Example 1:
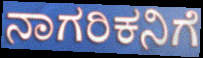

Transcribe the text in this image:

ನಾಗರಿಕನಿಗೆ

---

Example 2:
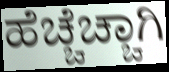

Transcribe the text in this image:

ಹೆಚ್ಚೆಚ್ಚಾಗಿ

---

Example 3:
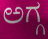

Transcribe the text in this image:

ಅಗ್ಗ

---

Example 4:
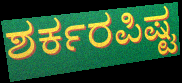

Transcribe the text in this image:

ಶರ್ಕರಪಿಷ್ಟ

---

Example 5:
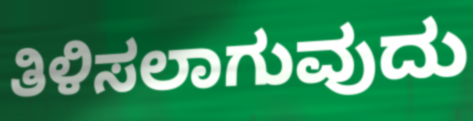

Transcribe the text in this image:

ತಿಳಿಸಲಾಗುವುದು